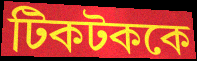
টিকটককে